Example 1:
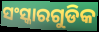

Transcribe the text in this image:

ସଂସ୍କାରଗୁଡିକ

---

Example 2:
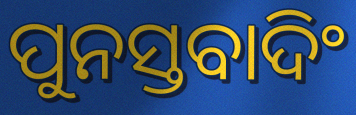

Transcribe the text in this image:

ପୁନସ୍ତବାଦିଂ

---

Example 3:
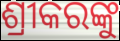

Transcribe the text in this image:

ଶ୍ରୀକରଙ୍କୁ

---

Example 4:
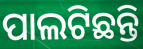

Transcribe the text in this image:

ପାଲଟିଛନ୍ତି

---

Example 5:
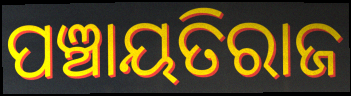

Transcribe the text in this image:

ପଞ୍ଚାୟତିରାଜ